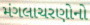
મંગલાચરણોનો